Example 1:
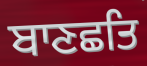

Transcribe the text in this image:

ਬਾਣਛਤਿ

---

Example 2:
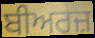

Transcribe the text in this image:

ਬੀਅਰਜ਼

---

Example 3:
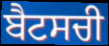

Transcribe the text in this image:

ਬੈਟਸਚੀ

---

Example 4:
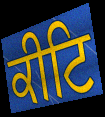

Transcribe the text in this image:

ਕੀਟਿ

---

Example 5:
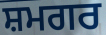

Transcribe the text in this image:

ਸ਼ਮਗਰ